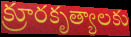
క్రూరకృత్యాలకు